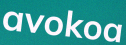
avokoa